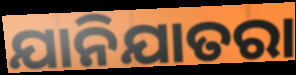
ଯାନିଯାତରା